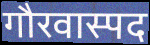
गौरवास्पद